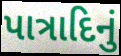
પાત્રાદિનું